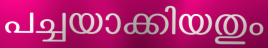
പച്ചയാക്കിയതും